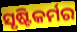
ସୃଷ୍ଟିକର୍ମର